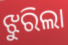
ଝୁରିଲା